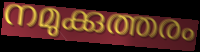
നമുക്കുത്തരം